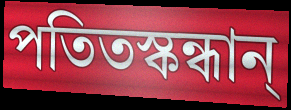
পতিতস্কন্ধান্